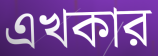
এখকার